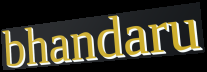
bhandaru